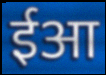
ईआ